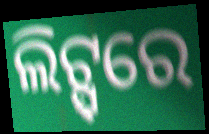
ଲିଟ୍ସ୍‌ରେ